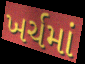
ખર્ચમાં